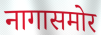
नागासमोर